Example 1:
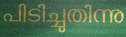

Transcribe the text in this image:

പിടിച്ചുതിന്നു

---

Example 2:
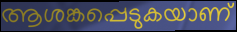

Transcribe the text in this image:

ആശങ്കപ്പെടുകയാണ്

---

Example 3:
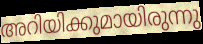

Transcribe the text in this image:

അറിയിക്കുമായിരുന്നു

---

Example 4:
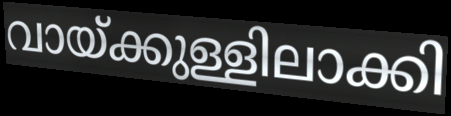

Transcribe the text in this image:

വായ്ക്കുള്ളിലാക്കി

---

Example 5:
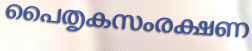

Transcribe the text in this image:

പൈതൃകസംരക്ഷണ